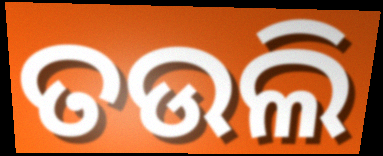
ତଉଲି